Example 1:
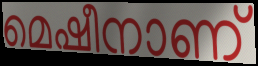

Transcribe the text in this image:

മെഷീനാണ്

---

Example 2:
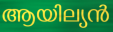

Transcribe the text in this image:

ആയില്യൻ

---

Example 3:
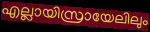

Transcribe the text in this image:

എല്ലായിസ്രായേലിലും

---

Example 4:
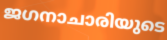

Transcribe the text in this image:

ജഗനാചാരിയുടെ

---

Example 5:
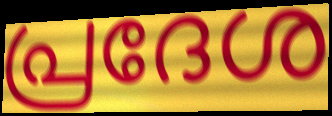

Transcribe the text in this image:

പ്രദേശ